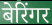
बेरिंगर